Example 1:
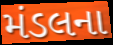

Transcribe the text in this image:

મંડલના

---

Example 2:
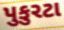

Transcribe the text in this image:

પુકુરટા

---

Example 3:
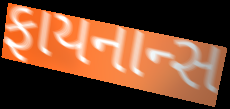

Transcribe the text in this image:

ફાયનાન્સ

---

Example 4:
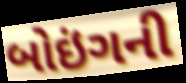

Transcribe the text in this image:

બોઇંગની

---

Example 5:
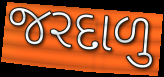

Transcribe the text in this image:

જરદાળુ